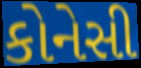
કોનેસી